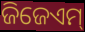
ଜିଜେଏମ୍